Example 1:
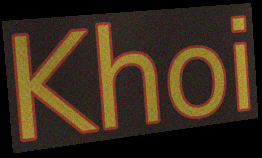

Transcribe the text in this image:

Khoi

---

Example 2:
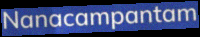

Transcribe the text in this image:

Nanacampantam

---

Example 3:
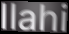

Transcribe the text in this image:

Ilahi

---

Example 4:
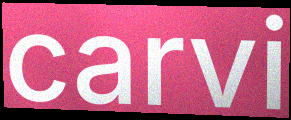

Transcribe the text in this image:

carvi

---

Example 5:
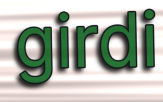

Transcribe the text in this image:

girdi